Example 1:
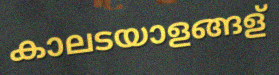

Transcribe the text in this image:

കാലടയാളങ്ങള്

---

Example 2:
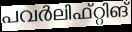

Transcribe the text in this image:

പവർലിഫ്റ്റിങ്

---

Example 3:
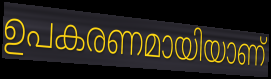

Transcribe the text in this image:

ഉപകരണമായിയാണ്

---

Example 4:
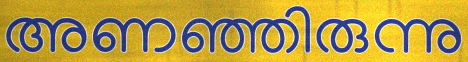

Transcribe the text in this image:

അണഞ്ഞിരുന്നു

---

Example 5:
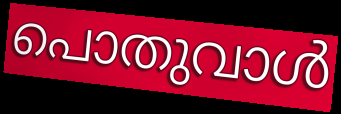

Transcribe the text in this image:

പൊതുവാൾ